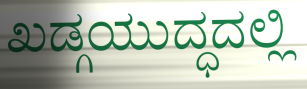
ಖಡ್ಗಯುದ್ಧದಲ್ಲಿ